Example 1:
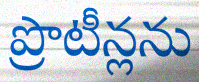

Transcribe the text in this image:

ప్రొటీన్లను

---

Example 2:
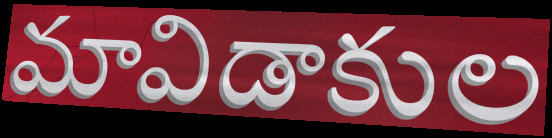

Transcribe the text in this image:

మావిడాకుల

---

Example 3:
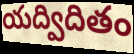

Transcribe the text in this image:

యద్విదితం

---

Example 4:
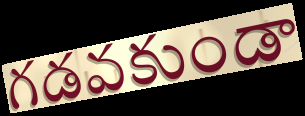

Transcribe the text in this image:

గడవకుండా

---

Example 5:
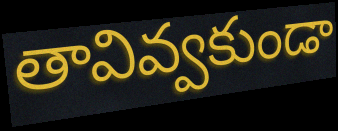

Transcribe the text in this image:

తావివ్వకుండా